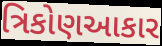
ત્રિકોણઆકાર